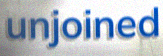
unjoined